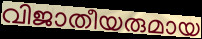
വിജാതീയരുമായ